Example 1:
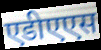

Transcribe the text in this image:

एडीएएस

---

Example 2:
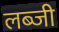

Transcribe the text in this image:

लब्जी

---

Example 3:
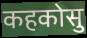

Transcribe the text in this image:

कहकोसु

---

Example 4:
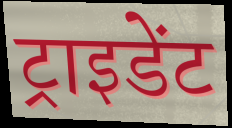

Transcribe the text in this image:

ट्राइडेंट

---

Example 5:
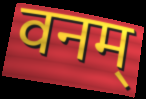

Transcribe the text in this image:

वनम्